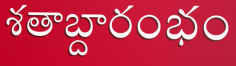
శతాబ్దారంభం